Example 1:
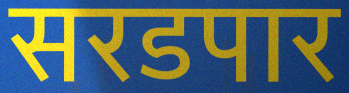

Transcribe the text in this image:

सरडपार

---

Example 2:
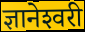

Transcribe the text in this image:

ज्ञानेश्‍वरी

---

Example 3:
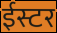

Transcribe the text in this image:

ईस्टर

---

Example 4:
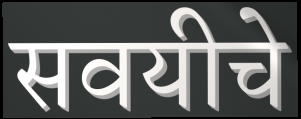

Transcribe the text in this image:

सवयीचे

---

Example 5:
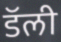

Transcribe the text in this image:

डॅली